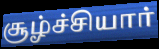
சூழ்ச்சியார்